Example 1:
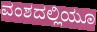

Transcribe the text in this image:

ವಂಶದಲ್ಲಿಯೂ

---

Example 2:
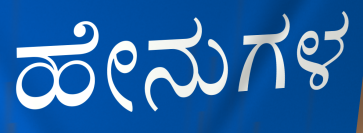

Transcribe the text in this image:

ಹೇನುಗಳ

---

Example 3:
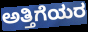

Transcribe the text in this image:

ಅತ್ತಿಗೆಯರ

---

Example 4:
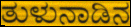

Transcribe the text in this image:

ತುಳುನಾಡಿನ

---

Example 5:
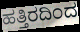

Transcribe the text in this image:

ಹತ್ತಿರದಿಂದ